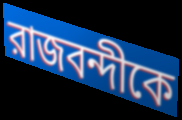
রাজবন্দীকে